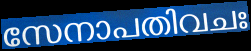
സേനാപതിവചഃ